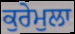
ਕੁਰੇਮੁਲਾ